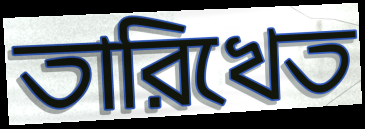
তারিখেত